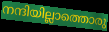
നന്ദിയില്ലാത്തൊരു